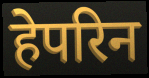
हेपरिन